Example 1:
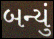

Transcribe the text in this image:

બન્યું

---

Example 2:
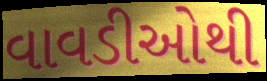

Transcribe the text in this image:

વાવડીઓથી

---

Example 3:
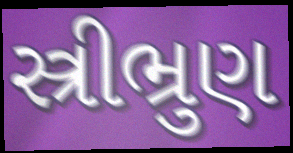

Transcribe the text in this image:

સ્ત્રીભ્રુણ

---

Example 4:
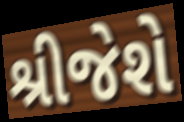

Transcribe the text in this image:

શ્રીજેશે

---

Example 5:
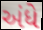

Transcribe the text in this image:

અંધે